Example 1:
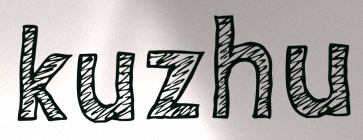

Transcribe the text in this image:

kuzhu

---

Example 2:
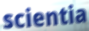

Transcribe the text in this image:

scientia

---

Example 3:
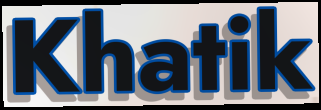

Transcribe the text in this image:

Khatik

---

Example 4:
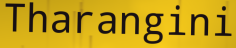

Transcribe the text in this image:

Tharangini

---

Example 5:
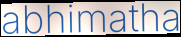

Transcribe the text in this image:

abhimatha